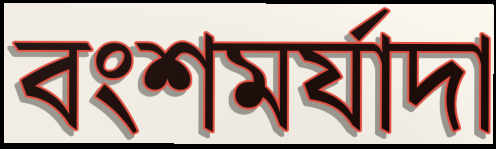
বংশমর্যাদা